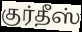
குர்தீஸ்